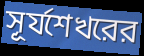
সূর্যশেখরের